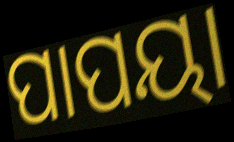
ପାପୟା